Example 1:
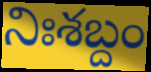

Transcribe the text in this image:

నిఃశబ్దం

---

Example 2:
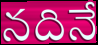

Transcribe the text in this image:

నదినే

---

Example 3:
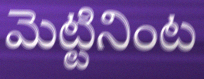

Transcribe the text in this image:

మెట్టినింట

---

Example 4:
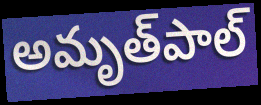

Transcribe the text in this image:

అమృత్‌పాల్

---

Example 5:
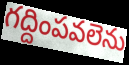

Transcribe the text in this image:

గద్దింపవలెను